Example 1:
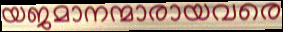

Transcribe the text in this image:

യജമാനന്മാരായവരെ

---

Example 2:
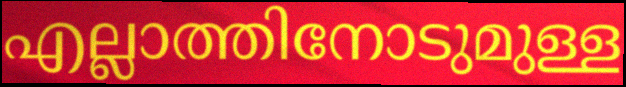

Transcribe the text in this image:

എല്ലാത്തിനോടുമുള്ള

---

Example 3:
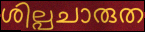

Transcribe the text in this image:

ശില്പചാരുത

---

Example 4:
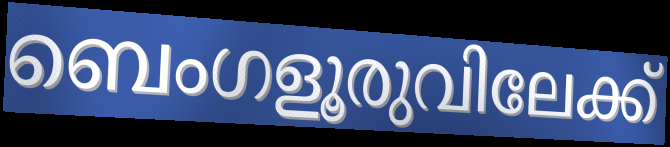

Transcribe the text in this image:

ബെംഗളൂരുവിലേക്ക്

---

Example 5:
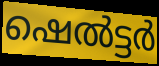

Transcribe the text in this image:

ഷെൽട്ടർ